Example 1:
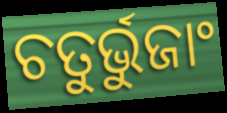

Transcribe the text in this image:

ଚତୁର୍ଭୁଜାଂ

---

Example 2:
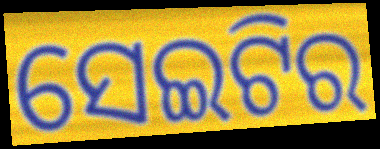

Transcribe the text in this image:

ସେଇଟିର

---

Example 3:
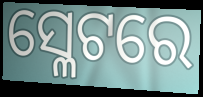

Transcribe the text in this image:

ସ୍ଳେଟରେ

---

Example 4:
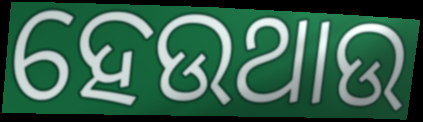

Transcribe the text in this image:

ହେଉଥାଉ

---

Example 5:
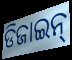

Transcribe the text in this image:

ଡିଜାଇନ୍